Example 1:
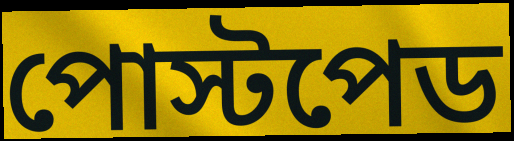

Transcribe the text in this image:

পোস্টপেড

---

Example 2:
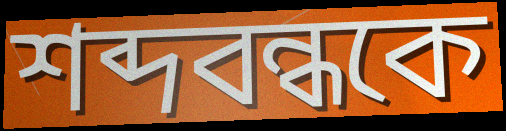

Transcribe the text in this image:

শব্দবন্ধকে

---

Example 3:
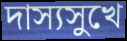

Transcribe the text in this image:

দাস্যসুখে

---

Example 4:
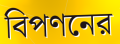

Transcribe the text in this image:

বিপণনের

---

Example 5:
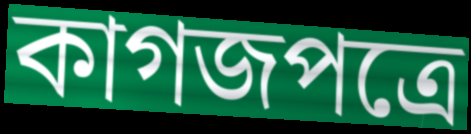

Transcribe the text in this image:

কাগজপত্রে